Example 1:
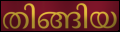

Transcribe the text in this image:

തിങ്ങിയ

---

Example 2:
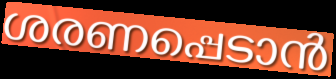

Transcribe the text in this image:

ശരണപ്പെടാൻ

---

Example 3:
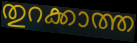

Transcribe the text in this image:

തുറക്കാത്ത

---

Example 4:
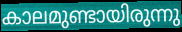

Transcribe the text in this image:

കാലമുണ്ടായിരുന്നു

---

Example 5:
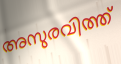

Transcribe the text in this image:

അസുരവിത്ത്